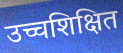
उच्चशिक्षित